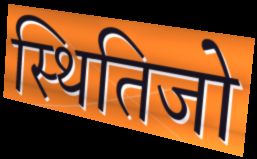
स्थितिजो